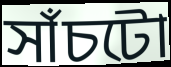
সাঁচটো